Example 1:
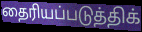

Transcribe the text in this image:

தைரியப்படுத்திக்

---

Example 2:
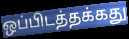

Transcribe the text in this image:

ஒப்பிடத்தக்கது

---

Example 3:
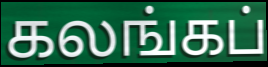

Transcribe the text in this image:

கலங்கப்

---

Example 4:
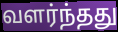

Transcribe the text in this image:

வளர்ந்தது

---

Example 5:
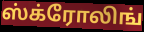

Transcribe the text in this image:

ஸ்க்ரோலிங்